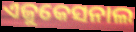
ଏଜୁକେସନାଲ